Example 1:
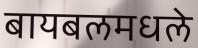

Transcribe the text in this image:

बायबलमधले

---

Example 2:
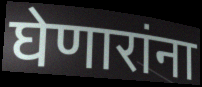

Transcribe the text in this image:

घेणारांना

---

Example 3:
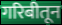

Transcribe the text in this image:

गरिबीतून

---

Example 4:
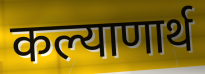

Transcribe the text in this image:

कल्याणार्थ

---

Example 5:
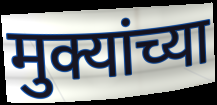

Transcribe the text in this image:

मुक्यांच्या